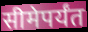
सीमेपर्यंत